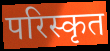
परिस्कृत